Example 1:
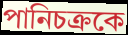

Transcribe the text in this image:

পানিচক্রকে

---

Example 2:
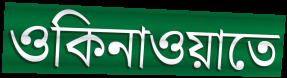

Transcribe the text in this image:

ওকিনাওয়াতে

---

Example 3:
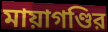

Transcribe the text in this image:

মায়াগণ্ডির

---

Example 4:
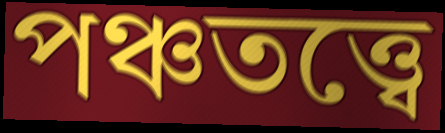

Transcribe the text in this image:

পঞ্চতত্ত্বে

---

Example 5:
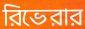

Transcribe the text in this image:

রিভেরার